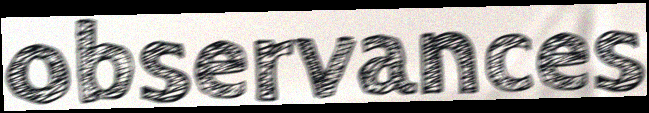
observances